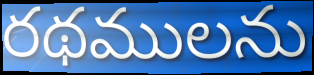
రథములను